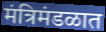
मंत्रिमंडळात